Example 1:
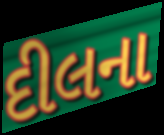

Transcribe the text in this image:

દીલના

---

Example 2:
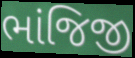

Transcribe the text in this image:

ભાંજિજી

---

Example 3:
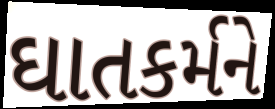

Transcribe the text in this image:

ઘાતકર્મને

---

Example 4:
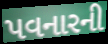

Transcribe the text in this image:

પવનારની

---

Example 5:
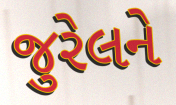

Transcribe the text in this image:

જુરેલને